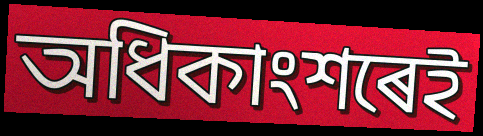
অধিকাংশৰেই